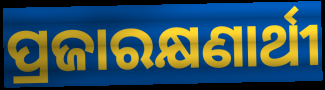
ପ୍ରଜାରକ୍ଷଣାର୍ଥୀ